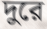
দুরে